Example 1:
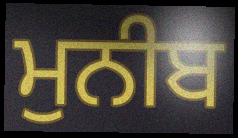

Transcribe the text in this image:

ਮੁਨੀਬ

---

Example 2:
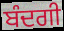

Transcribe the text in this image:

ਬੰਦਗੀ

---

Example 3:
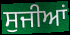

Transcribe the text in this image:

ਸੁਜੀਆਂ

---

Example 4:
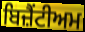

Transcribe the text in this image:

ਬਿਜ਼ੈਂਟੀਅਮ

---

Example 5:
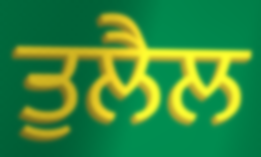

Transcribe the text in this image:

ਤੁਲੈਲ